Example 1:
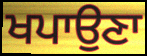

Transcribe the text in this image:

ਖਪਾਉਣਾ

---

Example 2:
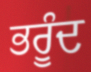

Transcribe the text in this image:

ਭਰੂੰਦ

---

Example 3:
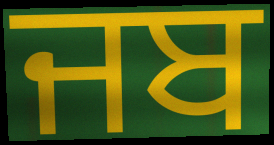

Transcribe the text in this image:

ਜਬ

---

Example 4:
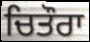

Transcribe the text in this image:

ਚਿਤੌਰਾ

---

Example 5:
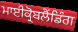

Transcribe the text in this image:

ਮਾਈਕ੍ਰੋਬਲੈਂਡਿੰਗ